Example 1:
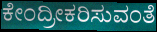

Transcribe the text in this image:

ಕೇಂದ್ರೀಕರಿಸುವಂತೆ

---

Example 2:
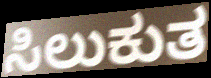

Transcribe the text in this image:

ಸಿಲುಕುತ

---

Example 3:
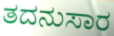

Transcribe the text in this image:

ತದನುಸಾರ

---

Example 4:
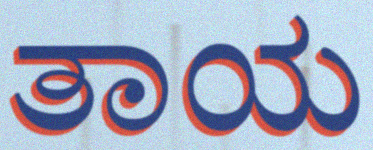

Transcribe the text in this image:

ತಾಯ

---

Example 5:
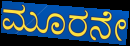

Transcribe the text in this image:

ಮೂರನೇ